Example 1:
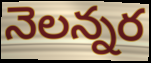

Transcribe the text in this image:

నెలన్నర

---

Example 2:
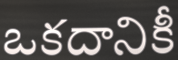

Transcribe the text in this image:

ఒకదానికీ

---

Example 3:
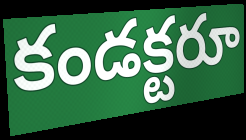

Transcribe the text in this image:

కండక్టరూ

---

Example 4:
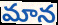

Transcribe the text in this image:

మాన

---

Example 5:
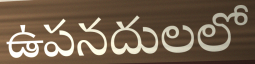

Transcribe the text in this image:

ఉపనదులలో